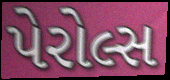
પેરોલ્સ